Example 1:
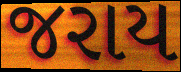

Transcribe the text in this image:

જરાય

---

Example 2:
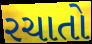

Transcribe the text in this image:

રચાતો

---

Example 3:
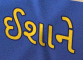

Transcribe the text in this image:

ઈશાને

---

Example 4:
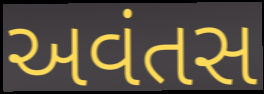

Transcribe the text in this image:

અવંતસ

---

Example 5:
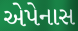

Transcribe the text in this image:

એપેનાસ